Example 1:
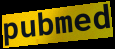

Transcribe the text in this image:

pubmed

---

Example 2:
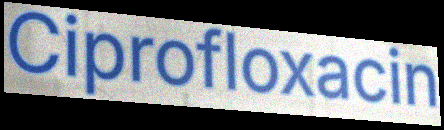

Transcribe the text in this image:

Ciprofloxacin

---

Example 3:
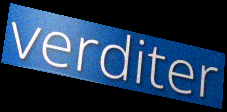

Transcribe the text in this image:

verditer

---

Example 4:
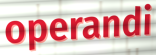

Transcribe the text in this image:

operandi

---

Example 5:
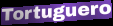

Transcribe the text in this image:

Tortuguero